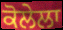
ਕੋਲੇਲਾ